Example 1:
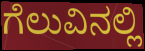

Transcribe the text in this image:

ಗೆಲುವಿನಲ್ಲಿ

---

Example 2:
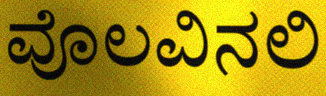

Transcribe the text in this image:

ವೊಲವಿನಲಿ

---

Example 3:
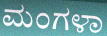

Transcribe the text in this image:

ಮಂಗಳಾ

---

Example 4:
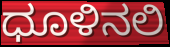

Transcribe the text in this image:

ಧೂಳಿನಲಿ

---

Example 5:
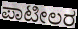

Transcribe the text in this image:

ಪಾಟೀಲರ